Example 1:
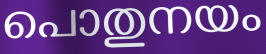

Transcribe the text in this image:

പൊതുനയം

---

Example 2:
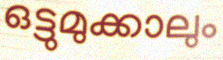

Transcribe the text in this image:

ഒട്ടുമുക്കാലും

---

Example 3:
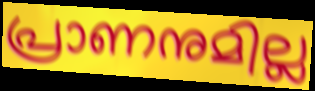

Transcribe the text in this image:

പ്രാണനുമില്ല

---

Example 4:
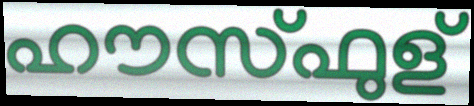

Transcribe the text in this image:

ഹൗസ്ഫുള്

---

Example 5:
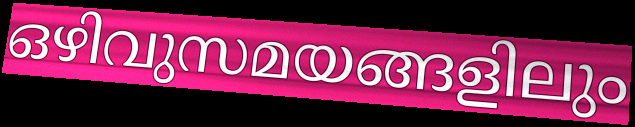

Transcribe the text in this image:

ഒഴിവുസമയങ്ങളിലും